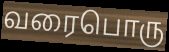
வரைபொரு